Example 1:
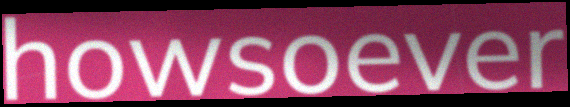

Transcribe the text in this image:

howsoever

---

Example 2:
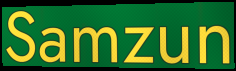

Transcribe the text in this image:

Samzun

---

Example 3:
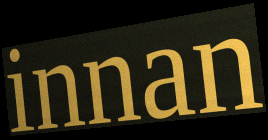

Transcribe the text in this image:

innan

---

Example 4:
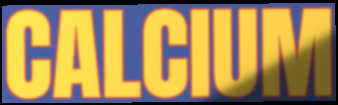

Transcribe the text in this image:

CALCIUM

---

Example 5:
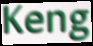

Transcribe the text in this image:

Keng